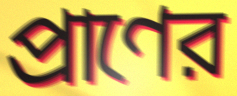
প্রাণের